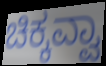
ಚಿಕ್ಕವ್ವಾ